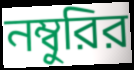
নম্বুরির